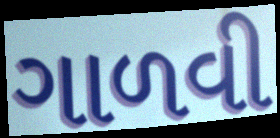
ગાળવી